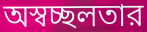
অস্বচ্ছলতার